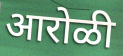
आरोळी